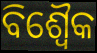
ବିଶ୍ୱୈକ